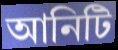
আনিটি